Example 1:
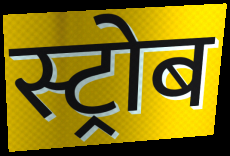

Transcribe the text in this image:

स्ट्रोब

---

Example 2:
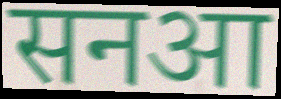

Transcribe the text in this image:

सनआ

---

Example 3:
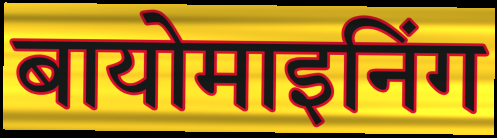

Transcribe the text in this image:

बायोमाइनिंग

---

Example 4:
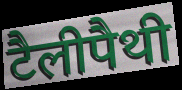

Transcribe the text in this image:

टैलीपैथी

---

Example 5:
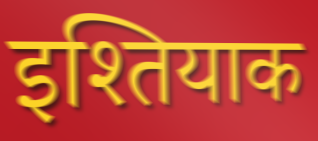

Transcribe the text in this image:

इश्तियाक